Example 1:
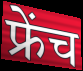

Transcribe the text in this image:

फ्रेंच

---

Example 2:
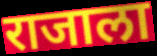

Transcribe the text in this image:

राजाला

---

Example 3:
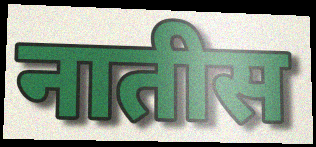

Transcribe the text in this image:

नातीस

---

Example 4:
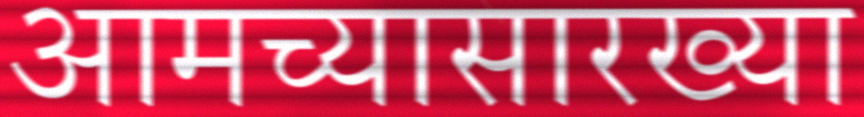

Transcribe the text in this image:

आमच्यासारख्या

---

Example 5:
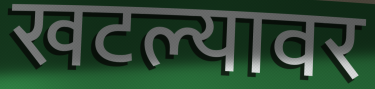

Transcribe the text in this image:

खटल्यावर